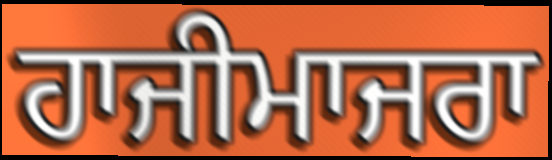
ਹਾਜੀਮਾਜਰਾ